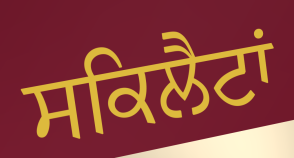
ਸਕਿਲੈਟਾਂ